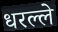
धरल्ले